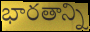
భారతాన్ని